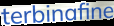
terbinafine